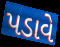
પડાવે